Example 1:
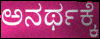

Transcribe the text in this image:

ಅನರ್ಥಕ್ಕೆ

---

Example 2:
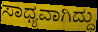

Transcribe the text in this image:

ಸಾಧ್ಯವಾಗಿದ್ದು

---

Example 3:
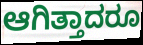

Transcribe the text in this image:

ಆಗಿತ್ತಾದರೂ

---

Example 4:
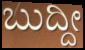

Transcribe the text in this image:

ಬುದ್ದೀ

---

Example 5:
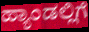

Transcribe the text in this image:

ಹ್ಯಾಂಡಲ್ಲಿಗೆ